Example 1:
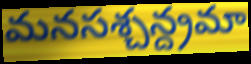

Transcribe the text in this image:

మనసశ్చన్ద్రమా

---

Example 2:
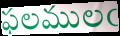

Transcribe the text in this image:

ఫలములఁ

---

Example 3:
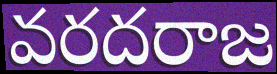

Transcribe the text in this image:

వరదరాజ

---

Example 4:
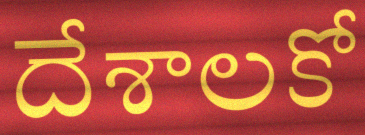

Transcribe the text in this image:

దేశాలకో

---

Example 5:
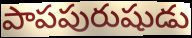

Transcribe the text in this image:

పాపపురుషుడు